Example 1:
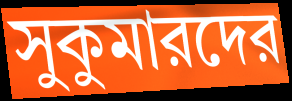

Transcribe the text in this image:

সুকুমারদের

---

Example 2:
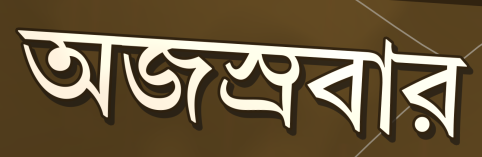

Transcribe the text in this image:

অজস্রবার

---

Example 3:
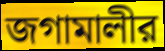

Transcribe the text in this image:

জগামালীর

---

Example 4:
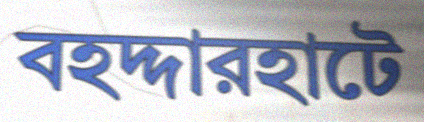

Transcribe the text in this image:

বহদ্দারহাটে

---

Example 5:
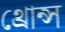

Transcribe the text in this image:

থ্রোন্স